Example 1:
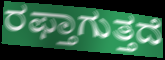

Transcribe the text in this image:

ರಫ್ತಾಗುತ್ತದೆ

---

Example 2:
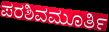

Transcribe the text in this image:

ಪರಶಿವಮೂರ್ತಿ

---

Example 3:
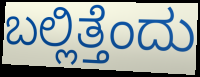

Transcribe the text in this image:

ಬಲ್ಲಿತ್ತೆಂದು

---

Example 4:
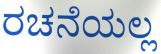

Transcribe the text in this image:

ರಚನೆಯಲ್ಲ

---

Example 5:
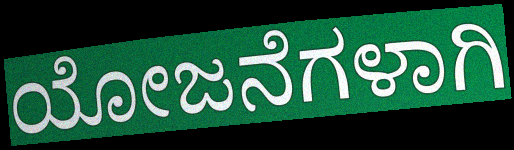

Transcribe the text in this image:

ಯೋಜನೆಗಳಾಗಿ